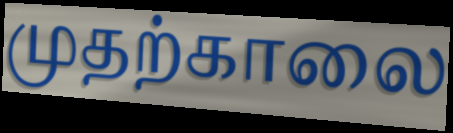
முதற்காலை